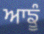
ਆਙੂੰ